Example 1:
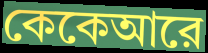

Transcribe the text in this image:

কেকেআরে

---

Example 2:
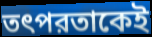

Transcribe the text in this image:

তৎপরতাকেই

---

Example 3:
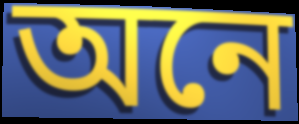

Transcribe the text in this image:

অনে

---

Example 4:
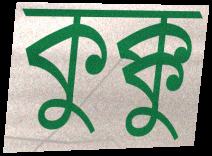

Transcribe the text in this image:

কুক্কু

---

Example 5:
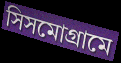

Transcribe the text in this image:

সিসমোগ্রামে